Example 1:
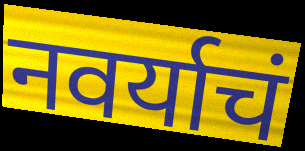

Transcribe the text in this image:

नवर्याचं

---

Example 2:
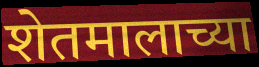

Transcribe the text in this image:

शेतमालाच्या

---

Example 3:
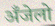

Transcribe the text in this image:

अँजेलो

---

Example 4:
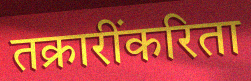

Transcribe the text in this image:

तक्रारींकरिता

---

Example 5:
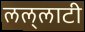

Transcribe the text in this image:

लल्लाटी